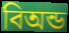
বিঅন্ড